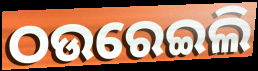
ଠଉରେଇଲି